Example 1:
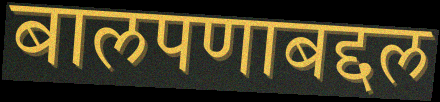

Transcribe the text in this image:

बालपणाबद्दल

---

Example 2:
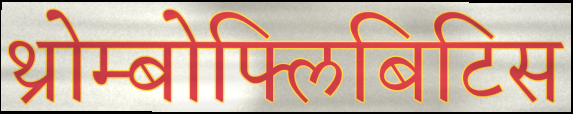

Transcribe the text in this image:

थ्रोम्बोफ्लिबिटिस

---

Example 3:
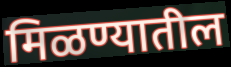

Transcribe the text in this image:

मिळण्यातील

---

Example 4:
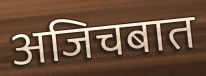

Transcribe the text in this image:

अजिचबात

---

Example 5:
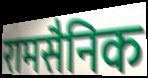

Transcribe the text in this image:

रामसैनिक